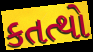
કતત્થો